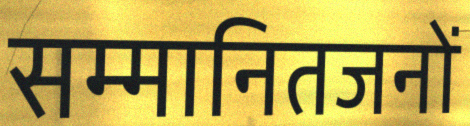
सम्मानितजनों